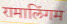
रामालिंगम